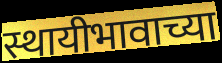
स्थायीभावाच्या